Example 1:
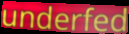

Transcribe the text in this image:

underfed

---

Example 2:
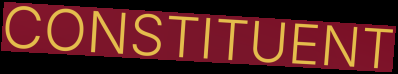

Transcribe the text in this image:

CONSTITUENT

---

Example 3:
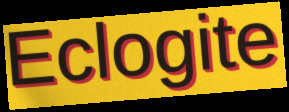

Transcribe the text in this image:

Eclogite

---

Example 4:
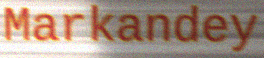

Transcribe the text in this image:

Markandey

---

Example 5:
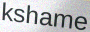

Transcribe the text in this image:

kshame